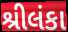
શ્રીલંકા